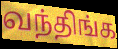
வந்திங்க